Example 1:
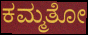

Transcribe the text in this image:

ಕಮ್ಮತೋ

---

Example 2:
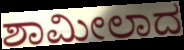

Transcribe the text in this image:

ಶಾಮೀಲಾದ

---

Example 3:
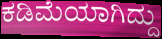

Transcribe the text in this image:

ಕಡಿಮೆಯಾಗಿದ್ದು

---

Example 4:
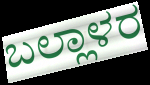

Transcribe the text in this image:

ಬಲ್ಲಾಳರ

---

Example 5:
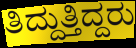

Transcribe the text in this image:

ತಿದ್ದುತ್ತಿದ್ದರು